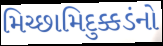
મિચ્છામિદુક્કડંનો